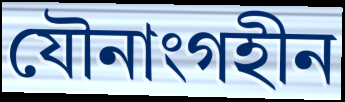
যৌনাংগহীন